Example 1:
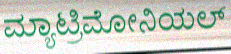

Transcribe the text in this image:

ಮ್ಯಾಟ್ರಿಮೋನಿಯಲ್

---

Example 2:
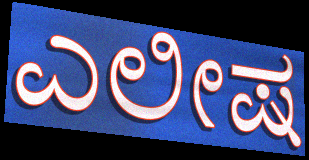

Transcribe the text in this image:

ಎಲೀಷ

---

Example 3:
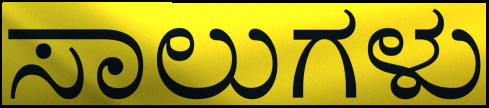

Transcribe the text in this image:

ಸಾಲುಗಳು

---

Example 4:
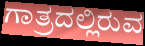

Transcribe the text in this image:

ಗಾತ್ರದಲ್ಲಿರುವ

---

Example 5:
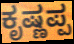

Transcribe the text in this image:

ಕೃಷ್ಣಪ್ಪ